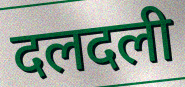
दलदली